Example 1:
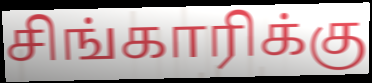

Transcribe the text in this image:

சிங்காரிக்கு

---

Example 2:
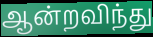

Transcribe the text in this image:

ஆன்றவிந்து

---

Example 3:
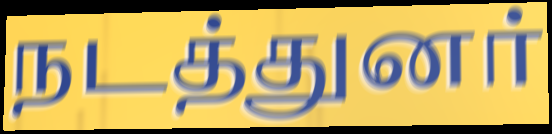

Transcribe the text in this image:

நடத்துனர்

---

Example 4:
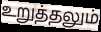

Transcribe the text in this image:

உறுத்தலும்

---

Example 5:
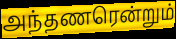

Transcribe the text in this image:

அந்தணரென்றும்